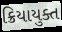
ક્રિયાયુક્ત